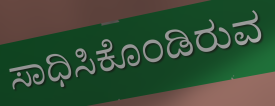
ಸಾಧಿಸಿಕೊಂಡಿರುವ